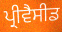
ਪ੍ਰੀਵੈਸੀਡ